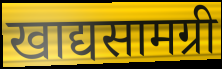
खाद्यसामग्री